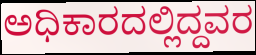
ಅಧಿಕಾರದಲ್ಲಿದ್ದವರ